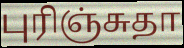
புரிஞ்சுதா